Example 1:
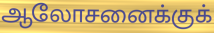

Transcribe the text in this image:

ஆலோசனைக்குக்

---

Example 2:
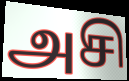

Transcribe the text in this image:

அசி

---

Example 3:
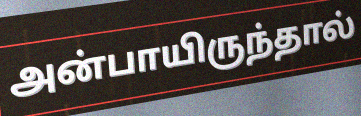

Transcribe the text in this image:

அன்பாயிருந்தால்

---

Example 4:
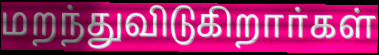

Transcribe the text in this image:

மறந்துவிடுகிறார்கள்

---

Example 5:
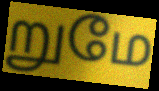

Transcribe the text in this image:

றுமே